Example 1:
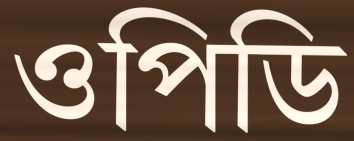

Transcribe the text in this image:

ওপিডি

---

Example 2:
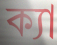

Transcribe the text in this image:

ক্যা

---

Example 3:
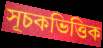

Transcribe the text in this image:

সূচকভিত্তিক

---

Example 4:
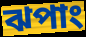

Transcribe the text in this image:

ঝপাং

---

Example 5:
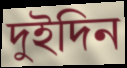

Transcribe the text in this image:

দুইদিন